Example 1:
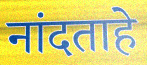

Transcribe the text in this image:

नांदताहे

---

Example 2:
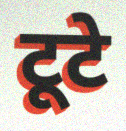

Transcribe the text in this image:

टूटे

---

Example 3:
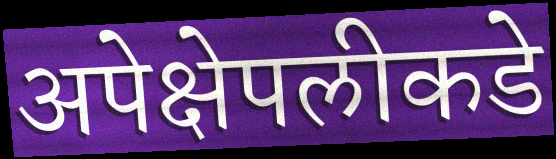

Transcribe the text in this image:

अपेक्षेपलीकडे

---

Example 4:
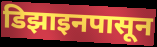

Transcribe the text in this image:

डिझाइनपासून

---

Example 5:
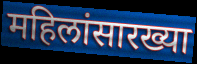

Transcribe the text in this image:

महिलांसारख्या